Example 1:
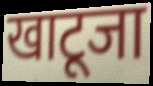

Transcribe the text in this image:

खाटूजा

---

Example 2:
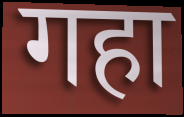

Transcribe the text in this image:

गहा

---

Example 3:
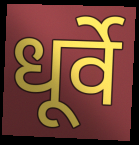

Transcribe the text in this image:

धूर्वे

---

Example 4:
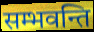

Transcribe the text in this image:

सम्भवन्ति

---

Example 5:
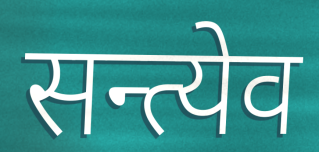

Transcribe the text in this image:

सन्त्येव